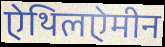
ऐथिलऐमीन